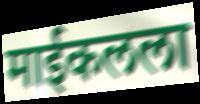
माईकलला